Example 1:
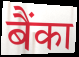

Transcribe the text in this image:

बैंका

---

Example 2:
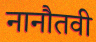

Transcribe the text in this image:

नानौतवी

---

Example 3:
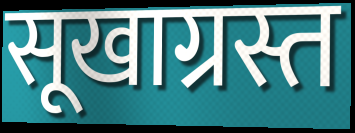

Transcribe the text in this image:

सूखाग्रस्त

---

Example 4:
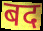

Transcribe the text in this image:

बद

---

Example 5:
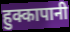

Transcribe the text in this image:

हुक्कापानी